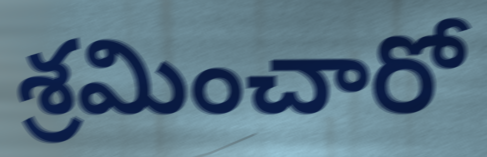
శ్రమించారో